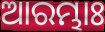
ଆରମ୍ଭାଃ